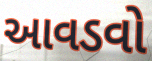
આવડવો